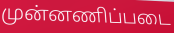
முன்னணிப்படை